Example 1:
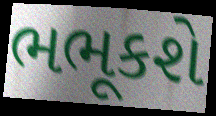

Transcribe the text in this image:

ભભૂકશે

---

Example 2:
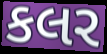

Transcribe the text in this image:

કલર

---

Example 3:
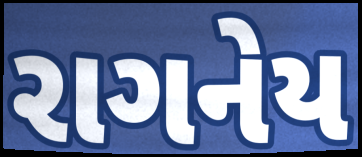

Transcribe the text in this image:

રાગનેય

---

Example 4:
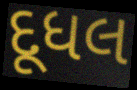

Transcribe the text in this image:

દૂધલ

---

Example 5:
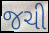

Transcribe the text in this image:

જચી